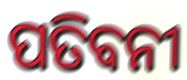
ପତିବନୀ